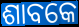
ଶାବକେ